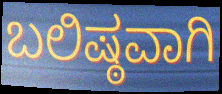
ಬಲಿಷ್ಠವಾಗಿ